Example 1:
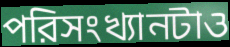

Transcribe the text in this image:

পরিসংখ্যানটাও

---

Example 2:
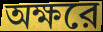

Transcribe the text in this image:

অক্ষরে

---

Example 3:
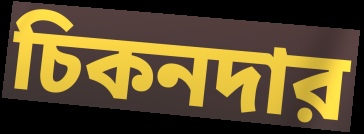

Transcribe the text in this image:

চিকনদার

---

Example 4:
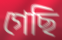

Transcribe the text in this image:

গেছি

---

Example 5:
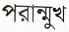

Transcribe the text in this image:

পরান্মুখ